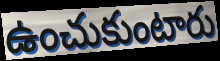
ఉంచుకుంటారు